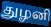
துழனி